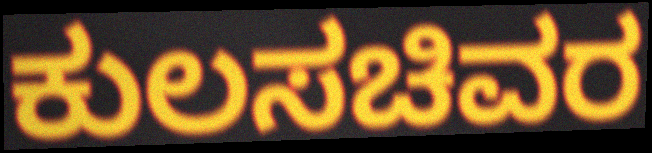
ಕುಲಸಚಿವರ